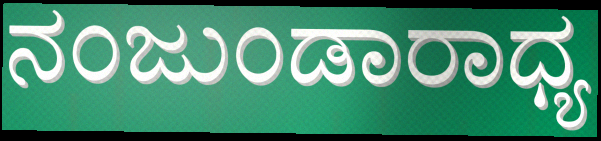
ನಂಜುಂಡಾರಾಧ್ಯ